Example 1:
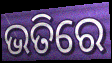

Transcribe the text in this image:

ଭତିରେ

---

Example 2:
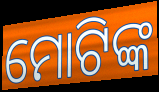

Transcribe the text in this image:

ମୋଟିଙ୍କ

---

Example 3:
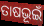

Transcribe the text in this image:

ତାଷଭୂଇଁ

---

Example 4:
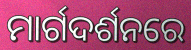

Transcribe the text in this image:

ମାର୍ଗଦର୍ଶନରେ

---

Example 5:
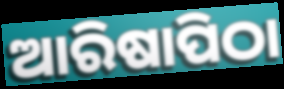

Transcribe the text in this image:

ଆରିଷାପିଠା